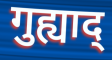
गुह्याद्